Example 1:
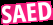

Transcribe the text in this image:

SAED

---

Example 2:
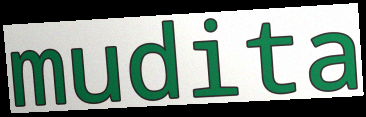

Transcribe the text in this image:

mudita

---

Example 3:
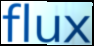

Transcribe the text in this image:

flux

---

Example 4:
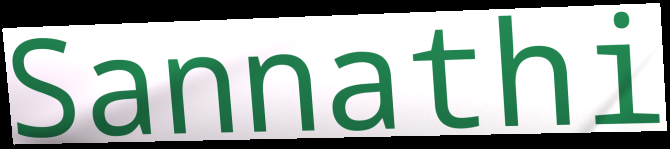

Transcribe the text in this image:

Sannathi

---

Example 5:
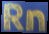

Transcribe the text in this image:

Rn